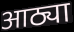
आठ्या